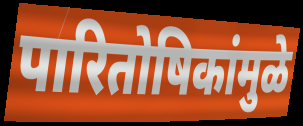
पारितोषिकांमुळे